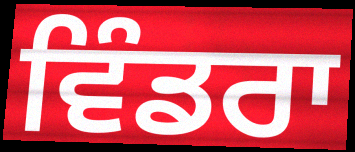
ਵਿੰਡਰਾ